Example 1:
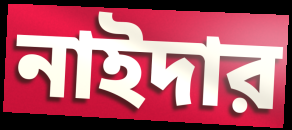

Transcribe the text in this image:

নাইদার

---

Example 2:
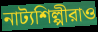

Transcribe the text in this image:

নাট্যশিল্পীরাও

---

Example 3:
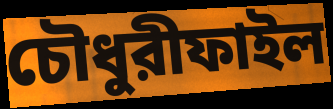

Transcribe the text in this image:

চৌধুরীফাইল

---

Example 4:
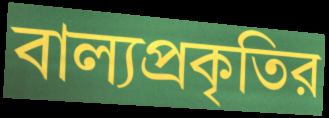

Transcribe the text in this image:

বাল্যপ্রকৃতির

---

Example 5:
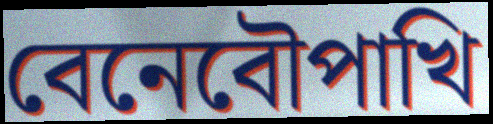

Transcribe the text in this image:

বেনেবৌপাখি